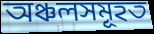
অঞ্চলসমূহত